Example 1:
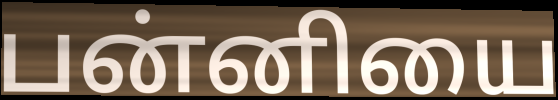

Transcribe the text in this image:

பன்னியை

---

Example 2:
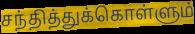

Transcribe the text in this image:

சந்தித்துக்கொள்ளும்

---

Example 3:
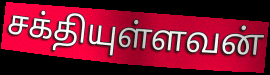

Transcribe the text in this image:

சக்தியுள்ளவன்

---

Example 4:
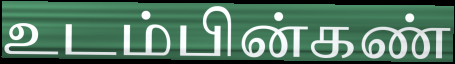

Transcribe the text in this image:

உடம்பின்கண்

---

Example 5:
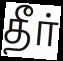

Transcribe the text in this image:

தீர்